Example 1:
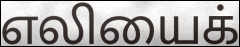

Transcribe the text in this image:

எலியைக்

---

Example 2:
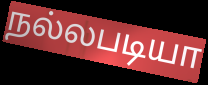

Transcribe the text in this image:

நல்லபடியா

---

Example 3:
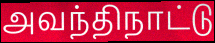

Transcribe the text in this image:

அவந்திநாட்டு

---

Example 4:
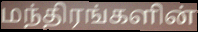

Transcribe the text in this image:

மந்திரங்களின்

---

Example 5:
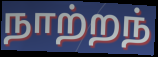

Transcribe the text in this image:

நாற்றந்